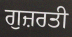
ਗੁਜ਼ਰਤੀ